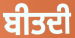
ਬੀਤਦੀ